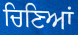
ਚਿਣਿਆਂ